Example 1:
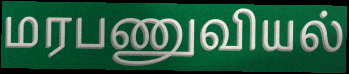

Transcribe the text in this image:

மரபணுவியல்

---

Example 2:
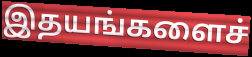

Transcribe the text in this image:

இதயங்களைச்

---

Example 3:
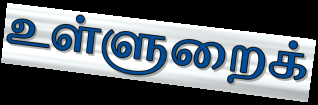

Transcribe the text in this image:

உள்ளுறைக்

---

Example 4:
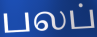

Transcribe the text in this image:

பலப்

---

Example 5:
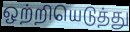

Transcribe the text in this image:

ஒற்றியெடுத்து